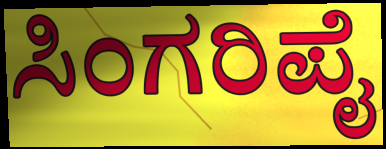
ಸಿಂಗರಿಪೈ